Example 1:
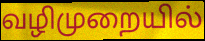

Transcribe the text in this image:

வழிமுறையில்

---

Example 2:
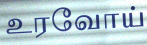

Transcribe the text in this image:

உரவோய்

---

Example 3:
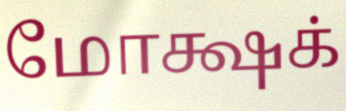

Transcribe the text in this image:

மோக்ஷக்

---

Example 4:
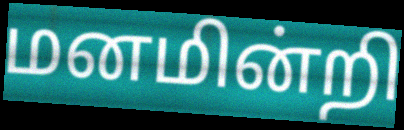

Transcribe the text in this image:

மனமின்றி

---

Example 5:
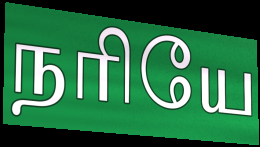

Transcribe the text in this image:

நரியே